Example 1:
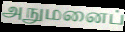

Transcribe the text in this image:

அநுமனைப்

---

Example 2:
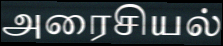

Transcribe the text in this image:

அரைசியல்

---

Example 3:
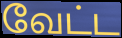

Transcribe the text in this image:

வேட்ட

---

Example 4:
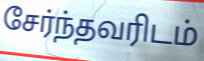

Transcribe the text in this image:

சேர்ந்தவரிடம்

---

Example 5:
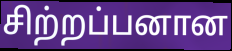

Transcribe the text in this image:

சிற்றப்பனான